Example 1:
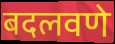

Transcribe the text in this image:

बदलवणे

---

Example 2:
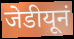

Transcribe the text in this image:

जेडीयूनं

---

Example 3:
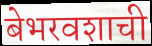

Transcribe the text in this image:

बेभरवशाची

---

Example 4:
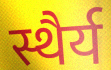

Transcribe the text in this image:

स्थैर्य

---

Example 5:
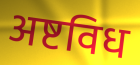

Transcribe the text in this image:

अष्टविध